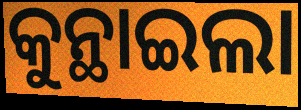
କୁନ୍ଥାଇଲା